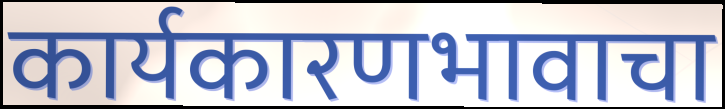
कार्यकारणभावाचा